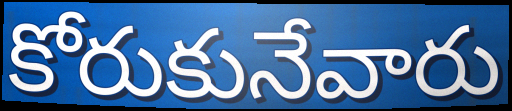
కోరుకునేవారు